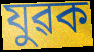
যুৱক